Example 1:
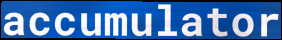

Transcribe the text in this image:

accumulator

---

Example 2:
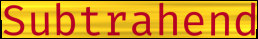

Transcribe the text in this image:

Subtrahend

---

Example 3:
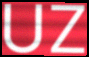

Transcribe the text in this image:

UZ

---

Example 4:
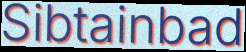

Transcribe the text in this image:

Sibtainbad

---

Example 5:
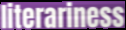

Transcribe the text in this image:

literariness